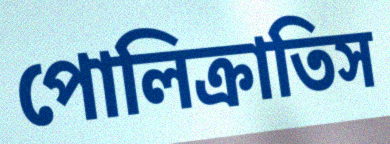
পোলিক্রাতিস